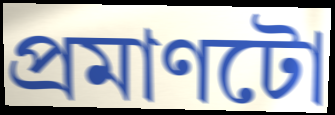
প্ৰমাণটো